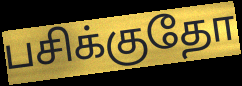
பசிக்குதோ